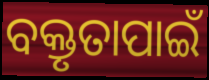
ବକ୍ତୃତାପାଇଁ